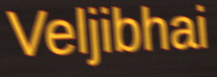
Veljibhai